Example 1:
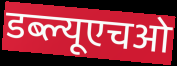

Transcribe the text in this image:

डब्ल्यूएचओ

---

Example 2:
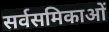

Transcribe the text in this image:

सर्वसमिकाओं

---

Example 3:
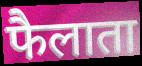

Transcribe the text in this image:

फैलाता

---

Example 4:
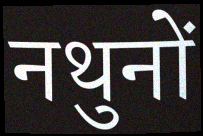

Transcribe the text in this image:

नथुनों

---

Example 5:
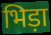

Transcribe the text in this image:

भिड़ा